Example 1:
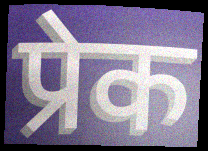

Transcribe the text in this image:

प्रेक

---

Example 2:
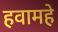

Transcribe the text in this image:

हवामहे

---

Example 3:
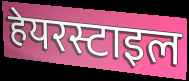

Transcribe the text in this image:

हेयरस्टाइल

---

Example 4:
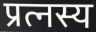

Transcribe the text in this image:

प्रत्नस्य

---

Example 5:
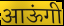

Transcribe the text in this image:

आऊंगी